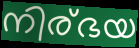
നിര്ഭയ